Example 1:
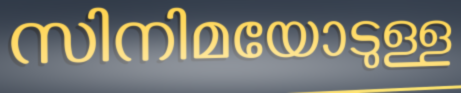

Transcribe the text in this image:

സിനിമയോടുള്ള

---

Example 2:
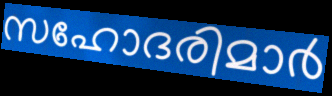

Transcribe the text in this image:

സഹോദരിമാർ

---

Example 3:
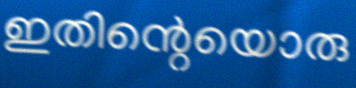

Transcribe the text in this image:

ഇതിന്റെയൊരു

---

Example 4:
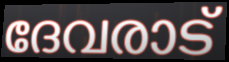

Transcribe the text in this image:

ദേവരാട്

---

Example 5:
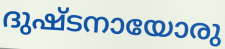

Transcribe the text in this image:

ദുഷ്ടനായോരു